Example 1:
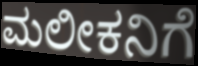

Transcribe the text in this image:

ಮಲೀಕನಿಗೆ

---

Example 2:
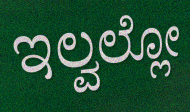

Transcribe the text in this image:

ಇಲ್ವಲ್ಲೋ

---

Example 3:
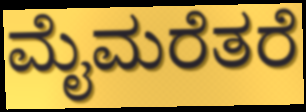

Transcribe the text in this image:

ಮೈಮರೆತರೆ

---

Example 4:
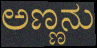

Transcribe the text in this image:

ಅಣ್ಣನು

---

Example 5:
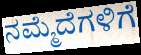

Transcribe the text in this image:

ನಮ್ಮೆದೆಗಳಿಗೆ